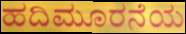
ಹದಿಮೂರನೆಯ